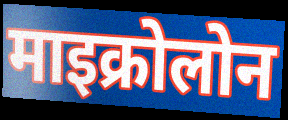
माइक्रोलोन